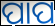
ପାପ